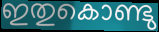
ഇതുകൊണ്ടു